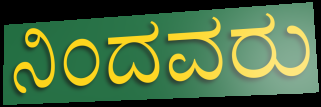
ನಿಂದವರು